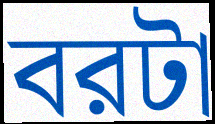
বরটা